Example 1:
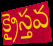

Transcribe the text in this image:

క్రైస్తవ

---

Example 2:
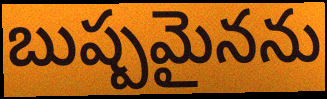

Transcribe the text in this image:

బుష్పమైనను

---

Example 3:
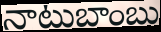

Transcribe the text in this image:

నాటుబాంబు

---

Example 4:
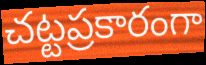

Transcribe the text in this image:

చట్టప్రకారంగా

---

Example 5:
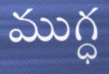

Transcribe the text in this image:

ముగ్ధ